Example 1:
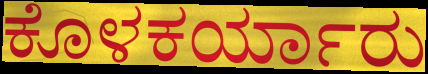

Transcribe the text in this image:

ಕೊಳಕರ್ಯಾರು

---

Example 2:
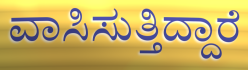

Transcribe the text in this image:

ವಾಸಿಸುತ್ತಿದ್ದಾರೆ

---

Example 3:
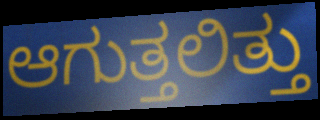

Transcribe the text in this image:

ಆಗುತ್ತಲಿತ್ತು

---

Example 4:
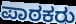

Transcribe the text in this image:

ಪಾಠಕರು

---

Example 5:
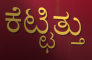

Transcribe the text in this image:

ಕೆಟ್ಟಿತ್ತು